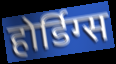
होर्डिग्स